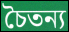
চৈতন্য